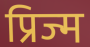
प्रिज्म